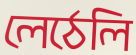
লেঠেলি